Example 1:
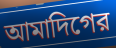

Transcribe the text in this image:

আমাদিগের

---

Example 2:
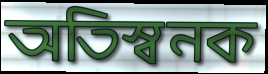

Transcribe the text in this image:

অতিস্বনক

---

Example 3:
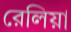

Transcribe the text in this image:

রেলিয়া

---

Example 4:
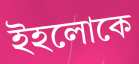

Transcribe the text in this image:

ইহলোকে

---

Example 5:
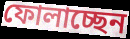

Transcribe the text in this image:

ফোলাচ্ছেন